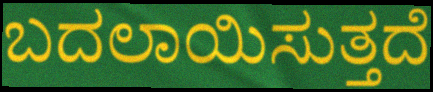
ಬದಲಾಯಿಸುತ್ತದೆ